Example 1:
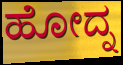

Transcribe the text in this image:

ಹೋದ್ನ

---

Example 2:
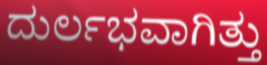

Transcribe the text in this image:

ದುರ್ಲಭವಾಗಿತ್ತು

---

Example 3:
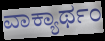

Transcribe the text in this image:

ವಾಕ್ಯಾರ್ಥಂ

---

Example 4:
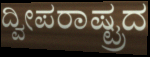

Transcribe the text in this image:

ದ್ವೀಪರಾಷ್ಟ್ರದ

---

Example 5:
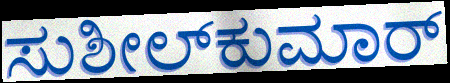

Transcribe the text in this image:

ಸುಶೀಲ್‌ಕುಮಾರ್